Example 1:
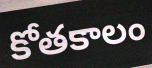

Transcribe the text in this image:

కోతకాలం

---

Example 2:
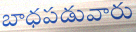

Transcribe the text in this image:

బాధపడువారు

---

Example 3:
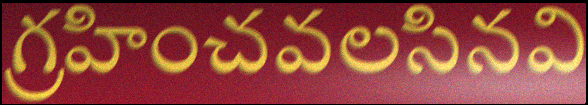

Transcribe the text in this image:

గ్రహించవలసినవి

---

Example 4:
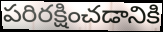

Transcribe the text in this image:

పరిరక్షించడానికి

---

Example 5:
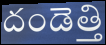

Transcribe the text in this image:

దండెత్తి